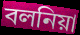
বলনিয়া